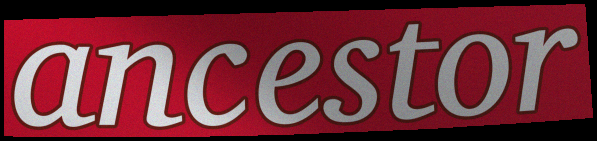
ancestor